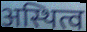
अस्थित्व